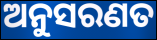
ଅନୁସରଣତ